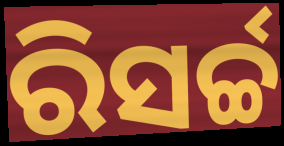
ରିସର୍ଚ୍ଚ